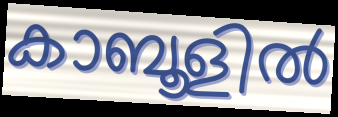
കാബൂളിൽ